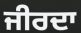
ਜੀਰਦਾ